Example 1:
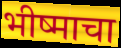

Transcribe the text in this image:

भीष्माचा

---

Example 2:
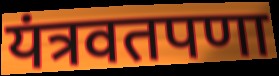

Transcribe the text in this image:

यंत्रवतपणा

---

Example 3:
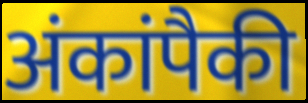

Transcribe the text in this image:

अंकांपैकी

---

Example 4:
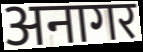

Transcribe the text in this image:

अनागर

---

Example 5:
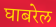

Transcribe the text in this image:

घाबरेल